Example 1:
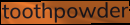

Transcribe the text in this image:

toothpowder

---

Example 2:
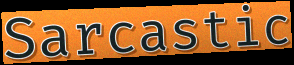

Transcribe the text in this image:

Sarcastic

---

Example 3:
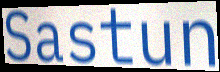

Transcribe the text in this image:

Sastun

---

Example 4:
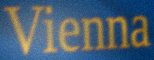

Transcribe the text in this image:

Vienna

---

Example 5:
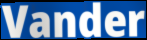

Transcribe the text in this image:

Vander